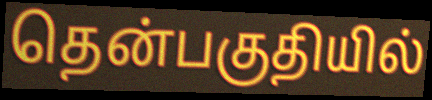
தென்பகுதியில்